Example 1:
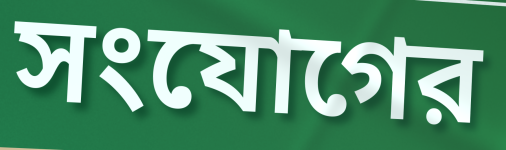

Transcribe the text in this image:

সংযোগের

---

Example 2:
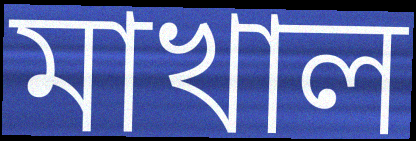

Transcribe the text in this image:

মাখাল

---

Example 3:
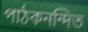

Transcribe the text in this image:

পাঠকনন্দিত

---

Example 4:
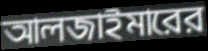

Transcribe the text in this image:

আলজাইমারের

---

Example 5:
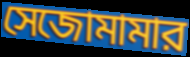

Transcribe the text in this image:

সেজোমামার